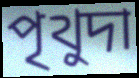
পৃথুদা